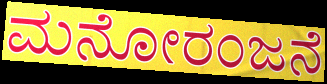
ಮನೋರಂಜನೆ